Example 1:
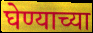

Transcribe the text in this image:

घेण्याच्या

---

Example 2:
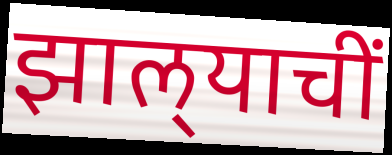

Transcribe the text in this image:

झाल्याचीं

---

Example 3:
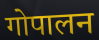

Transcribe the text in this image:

गोपालन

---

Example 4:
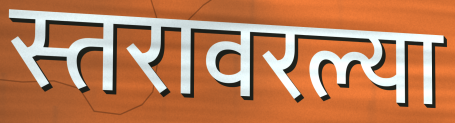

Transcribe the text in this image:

स्तरावरल्या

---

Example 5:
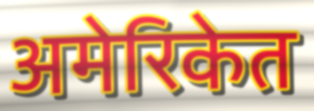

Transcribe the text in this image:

अमेरिकेत